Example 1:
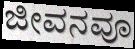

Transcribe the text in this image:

ಜೀವನವೂ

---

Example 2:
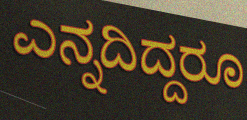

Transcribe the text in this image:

ಎನ್ನದಿದ್ದರೂ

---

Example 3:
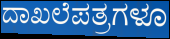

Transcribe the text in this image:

ದಾಖಲೆಪತ್ರಗಳೂ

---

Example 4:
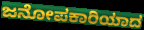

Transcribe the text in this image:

ಜನೋಪಕಾರಿಯಾದ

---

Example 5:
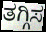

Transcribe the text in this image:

ತಗ್ಗಿಸ